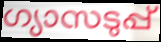
ഗ്യാസടുപ്പ്